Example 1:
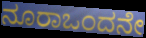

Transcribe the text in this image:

ನೂರಾಒಂದನೇ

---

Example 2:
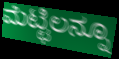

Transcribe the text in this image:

ಮೆಟ್ಟಿಲನ್ನೂ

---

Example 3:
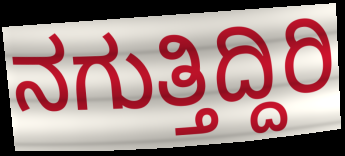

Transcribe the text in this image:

ನಗುತ್ತಿದ್ದಿರಿ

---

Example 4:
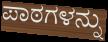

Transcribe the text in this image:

ಪಾಠಗಳನ್ನು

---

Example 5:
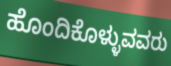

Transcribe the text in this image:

ಹೊಂದಿಕೊಳ್ಳುವವರು